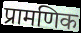
प्रामणिक